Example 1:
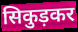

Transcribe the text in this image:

सिकुड़कर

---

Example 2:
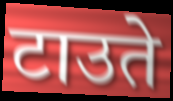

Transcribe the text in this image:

टाउते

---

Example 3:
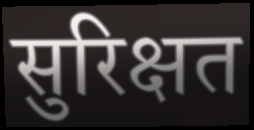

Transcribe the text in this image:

सुरिक्षत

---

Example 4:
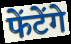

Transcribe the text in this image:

फेंटेंगे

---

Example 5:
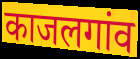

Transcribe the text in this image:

काजलगांव